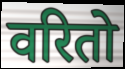
वरितो